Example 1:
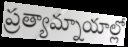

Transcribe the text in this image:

ప్రత్యామ్నాయాల్లో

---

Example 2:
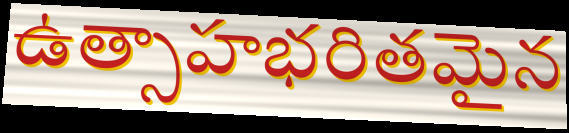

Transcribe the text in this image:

ఉత్సాహభరితమైన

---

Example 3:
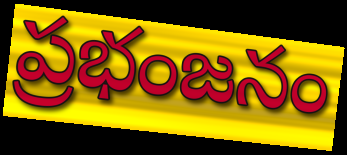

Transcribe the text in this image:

ప్రభంజనం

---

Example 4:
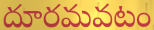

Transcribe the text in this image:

దూరమవటం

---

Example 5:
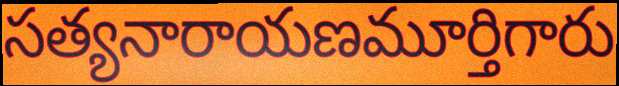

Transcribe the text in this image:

సత్యనారాయణమూర్తిగారు